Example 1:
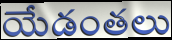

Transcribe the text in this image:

యేడంతలు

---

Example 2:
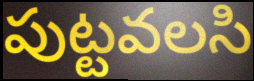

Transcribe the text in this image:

పుట్టవలసి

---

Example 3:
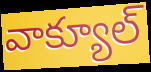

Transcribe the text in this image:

వాక్యూల్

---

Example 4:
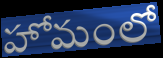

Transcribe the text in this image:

హోమంలో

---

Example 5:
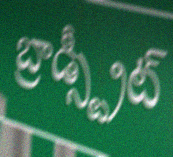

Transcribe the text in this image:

బ్రాడ్స్ట్రీట్